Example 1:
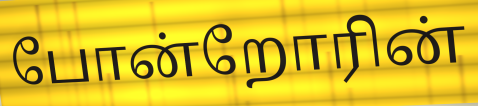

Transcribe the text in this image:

போன்றோரின்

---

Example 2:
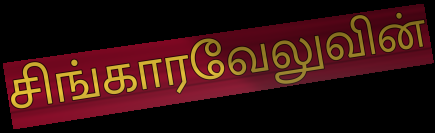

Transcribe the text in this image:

சிங்காரவேலுவின்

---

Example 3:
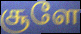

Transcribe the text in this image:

சூளே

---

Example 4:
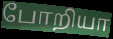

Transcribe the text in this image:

போறியா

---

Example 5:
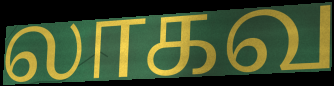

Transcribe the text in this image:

லாகவ